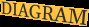
DIAGRAM